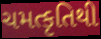
ચમત્કૃતિથી